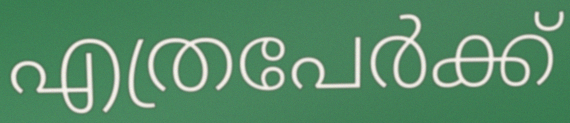
എത്രപേർക്ക്